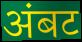
अंबट